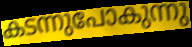
കടന്നുപോകുന്നു